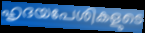
ഹൃദയപേശികളുടെ